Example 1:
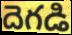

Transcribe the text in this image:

దెగడి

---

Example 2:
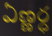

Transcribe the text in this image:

ఏణ్ణర్ధ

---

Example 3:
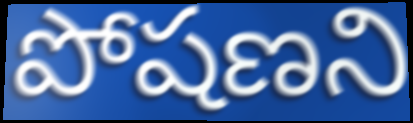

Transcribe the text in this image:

పోషణని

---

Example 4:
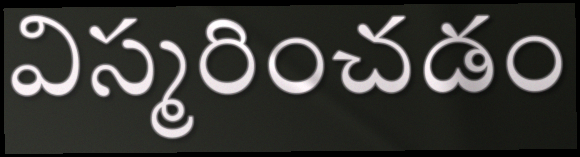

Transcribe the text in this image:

విస్మరించడం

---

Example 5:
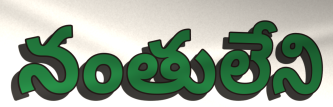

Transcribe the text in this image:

నంతులేని